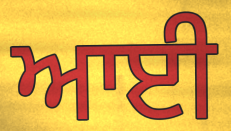
ਆਈ